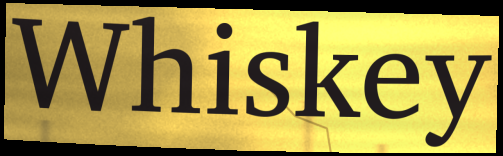
Whiskey